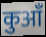
कुआँ